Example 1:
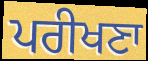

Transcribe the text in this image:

ਪਰੀਖਣਾ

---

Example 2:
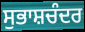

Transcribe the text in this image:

ਸੁਭਾਸ਼ਚੰਦਰ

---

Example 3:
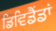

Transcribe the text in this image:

ਡਿਵਿਡੈਂਡਾਂ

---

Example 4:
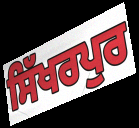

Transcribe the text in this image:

ਸਿੱਖਰਪੁਰ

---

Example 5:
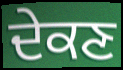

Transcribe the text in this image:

ਦੇਕਣ